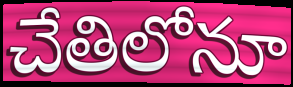
చేతిలోనూ